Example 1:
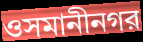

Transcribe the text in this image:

ওসমানীনগর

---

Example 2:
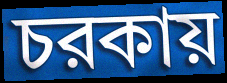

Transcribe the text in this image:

চরকায়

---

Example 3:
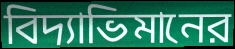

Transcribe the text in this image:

বিদ্যাভিমানের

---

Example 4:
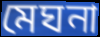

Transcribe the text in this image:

মেঘনা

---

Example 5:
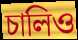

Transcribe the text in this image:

চালিও